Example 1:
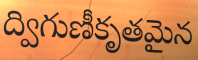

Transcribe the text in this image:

ద్విగుణీకృతమైన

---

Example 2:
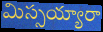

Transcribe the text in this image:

మిస్సయ్యారా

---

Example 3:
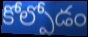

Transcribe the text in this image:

కోల్పోడం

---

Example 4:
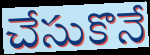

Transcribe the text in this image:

చేసుకొనే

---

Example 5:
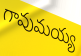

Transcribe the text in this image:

గావుమయ్య